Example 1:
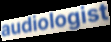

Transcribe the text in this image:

audiologist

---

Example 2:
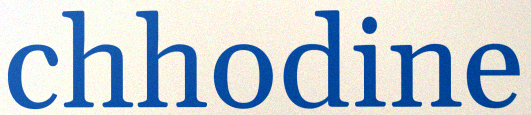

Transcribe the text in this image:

chhodine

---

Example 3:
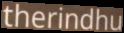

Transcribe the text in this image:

therindhu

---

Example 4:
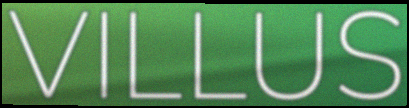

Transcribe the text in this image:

VILLUS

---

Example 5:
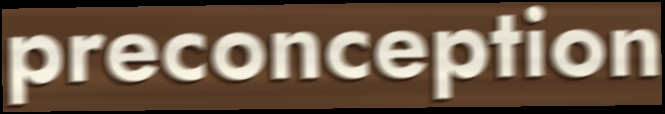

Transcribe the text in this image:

preconception